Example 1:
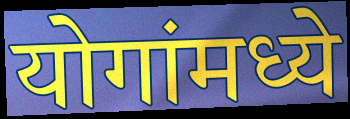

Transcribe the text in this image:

योगांमध्ये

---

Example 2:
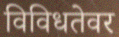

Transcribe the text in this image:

विविधतेवर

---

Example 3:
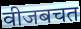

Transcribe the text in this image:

वीजबचत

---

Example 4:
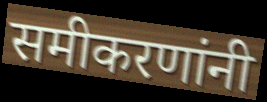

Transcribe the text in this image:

समीकरणांनी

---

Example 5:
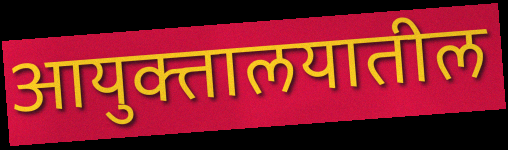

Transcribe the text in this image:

आयुक्तालयातील